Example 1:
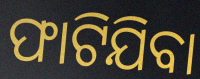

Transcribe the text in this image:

ଫାଟିଯିବା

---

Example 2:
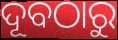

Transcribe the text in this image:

ଦୂବଠାରୁ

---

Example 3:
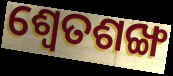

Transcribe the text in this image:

ଶ୍ୱେତଶଙ୍ଖ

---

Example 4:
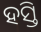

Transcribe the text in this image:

ହସ୍ତି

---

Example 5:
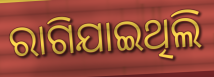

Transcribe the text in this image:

ରାଗିଯାଇଥିଲି